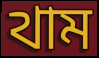
থাম